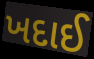
ખદાઈ